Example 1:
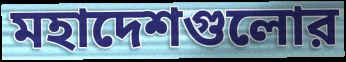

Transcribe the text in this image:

মহাদেশগুলোর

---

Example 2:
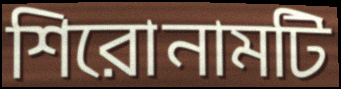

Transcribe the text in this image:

শিরোনামটি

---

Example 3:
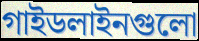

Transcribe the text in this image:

গাইডলাইনগুলো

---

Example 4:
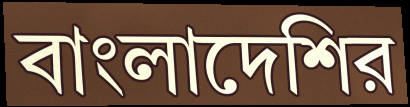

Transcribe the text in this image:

বাংলাদেশির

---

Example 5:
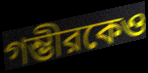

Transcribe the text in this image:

গম্ভীরকেও